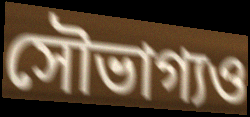
সৌভাগ্যও